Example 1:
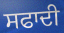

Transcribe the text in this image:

ਸਫਾਦੀ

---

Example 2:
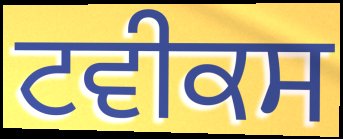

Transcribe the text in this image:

ਟਵੀਕਸ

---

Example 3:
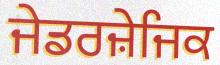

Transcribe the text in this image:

ਜੇਡਰਜ਼ੇਜਿਕ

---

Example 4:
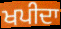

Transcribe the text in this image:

ਖਪੀਦਾ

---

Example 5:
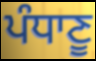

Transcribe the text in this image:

ਪੰਧਾਣੂ